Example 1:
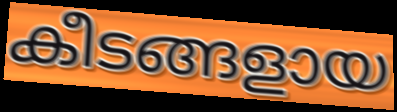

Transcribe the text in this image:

കീടങ്ങളായ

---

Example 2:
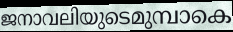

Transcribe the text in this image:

ജനാവലിയുടെമുമ്പാകെ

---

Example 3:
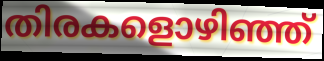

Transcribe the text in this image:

തിരകളൊഴിഞ്ഞ്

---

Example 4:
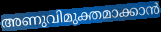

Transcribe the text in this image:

അണുവിമുക്തമാക്കാൻ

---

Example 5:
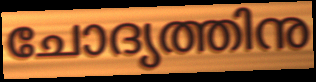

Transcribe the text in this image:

ചോദ്യത്തിനു